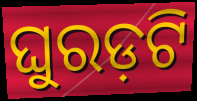
ଘୁରଡ଼ଟି